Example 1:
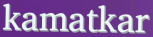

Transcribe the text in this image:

kamatkar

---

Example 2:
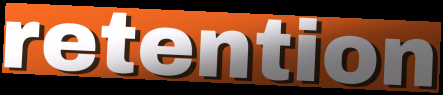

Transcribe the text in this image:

retention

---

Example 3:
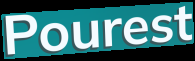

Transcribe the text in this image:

Pourest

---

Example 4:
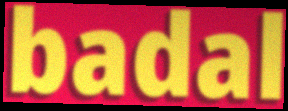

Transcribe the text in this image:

badal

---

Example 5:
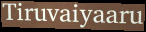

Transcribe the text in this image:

Tiruvaiyaaru